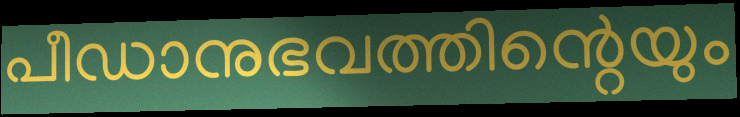
പീഡാനുഭവത്തിന്റെയും